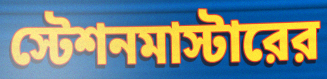
স্টেশনমাস্টারের